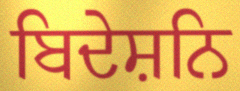
ਬਿਦੇਸ਼ਨਿ